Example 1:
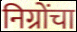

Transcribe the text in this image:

निग्रोंचा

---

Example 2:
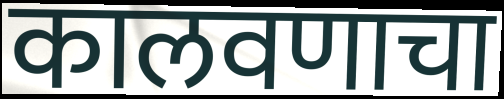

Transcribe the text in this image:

कालवणाचा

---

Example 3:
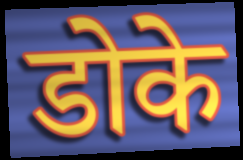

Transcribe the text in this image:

डोके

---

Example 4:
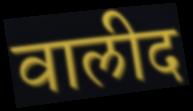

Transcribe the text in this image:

वालीद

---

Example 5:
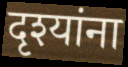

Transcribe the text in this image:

दृश्यांना